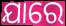
ଯାରେ